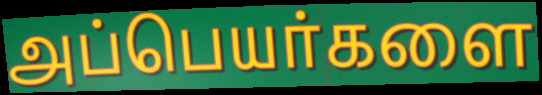
அப்பெயர்களை